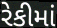
રેકીમાં